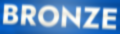
BRONZE